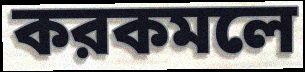
করকমলে